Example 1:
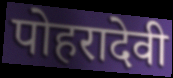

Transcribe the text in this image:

पोहरादेवी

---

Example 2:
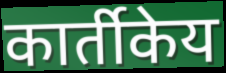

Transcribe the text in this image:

कार्तीकेय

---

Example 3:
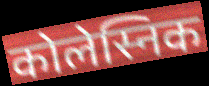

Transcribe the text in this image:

कोलेस्निक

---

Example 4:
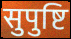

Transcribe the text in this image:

सुपुष्टि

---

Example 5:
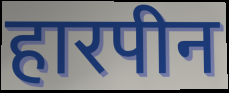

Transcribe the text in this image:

हारपीन